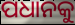
ପଧାନକୁ